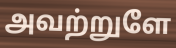
அவற்றுளே